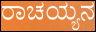
ರಾಚಯ್ಯನ